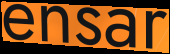
ensar